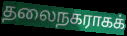
தலைநகராகக்